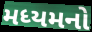
મધ્યમનો